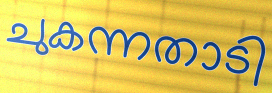
ചുകന്നതാടി